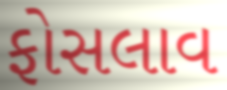
ફોસલાવ